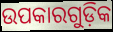
ଉପକାରଗୁଡ଼ିକ